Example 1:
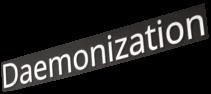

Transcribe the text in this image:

Daemonization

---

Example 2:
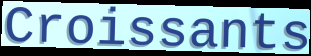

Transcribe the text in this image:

Croissants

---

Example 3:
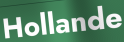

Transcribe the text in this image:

Hollande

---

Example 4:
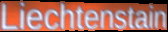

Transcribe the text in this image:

Liechtenstain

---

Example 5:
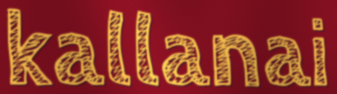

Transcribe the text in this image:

kallanai